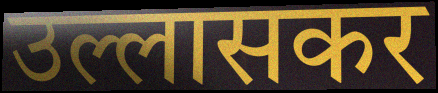
उल्लासकर